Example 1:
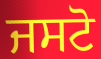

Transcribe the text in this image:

ਜਸਟੋ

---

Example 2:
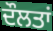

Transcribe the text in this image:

ਦੌਲਤਾਂ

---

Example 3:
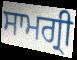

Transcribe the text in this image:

ਸਾਮਗ੍ਰੀ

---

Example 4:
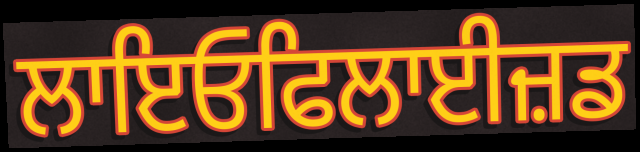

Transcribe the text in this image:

ਲਾਇਓਫਿਲਾਈਜ਼ਡ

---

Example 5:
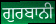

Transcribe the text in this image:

ਗੁਰਬਾਨੀ